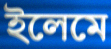
ইলেমে